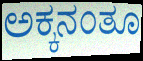
ಅಕ್ಕನಂತೂ